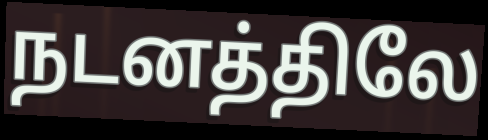
நடனத்திலே